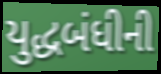
યુદ્ધબંધીની